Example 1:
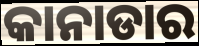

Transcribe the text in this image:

କାନାଡାର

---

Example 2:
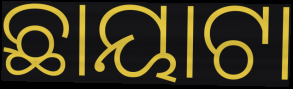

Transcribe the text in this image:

ଛାୟାଟା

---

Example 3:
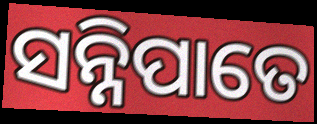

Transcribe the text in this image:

ସନ୍ନିପାତେ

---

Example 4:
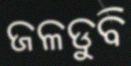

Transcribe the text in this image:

ଜଳଡୁବି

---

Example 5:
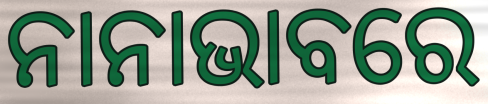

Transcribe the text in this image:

ନାନାଭାବରେ